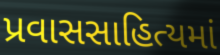
પ્રવાસસાહિત્યમાં